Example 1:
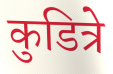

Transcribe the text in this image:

कुडित्रे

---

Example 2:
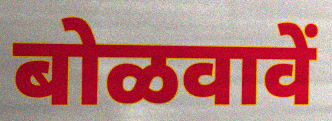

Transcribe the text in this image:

बोळवावें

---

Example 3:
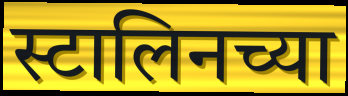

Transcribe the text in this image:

स्टालिनच्या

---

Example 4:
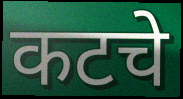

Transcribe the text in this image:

कटचे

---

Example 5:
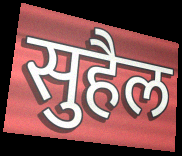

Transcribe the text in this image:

सुहैल